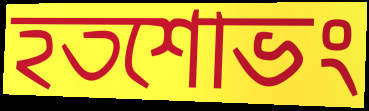
হতশোভং